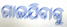
ଗାଇଯିବାକୁ